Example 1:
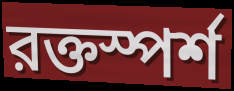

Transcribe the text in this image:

রক্তস্পর্শ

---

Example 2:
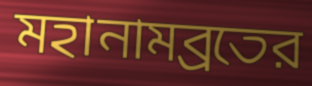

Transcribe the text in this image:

মহানামব্রতের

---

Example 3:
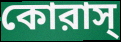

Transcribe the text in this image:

কোরাস্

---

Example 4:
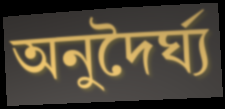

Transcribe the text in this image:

অনুদৈর্ঘ্য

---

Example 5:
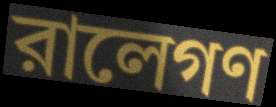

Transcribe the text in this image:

রালেগণ